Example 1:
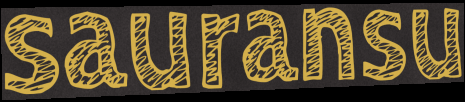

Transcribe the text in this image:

sauransu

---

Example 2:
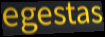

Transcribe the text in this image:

egestas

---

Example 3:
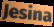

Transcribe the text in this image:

Jesina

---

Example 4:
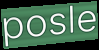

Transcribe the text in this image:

posle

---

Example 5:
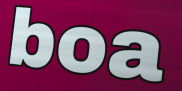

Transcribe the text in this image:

boa